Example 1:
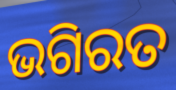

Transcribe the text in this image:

ଭଗିରତ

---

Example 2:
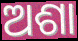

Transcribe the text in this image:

ଅଶା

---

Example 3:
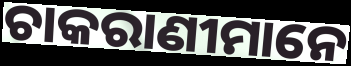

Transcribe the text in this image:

ଚାକରାଣୀମାନେ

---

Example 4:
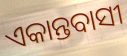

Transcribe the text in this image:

ଏକାନ୍ତବାସୀ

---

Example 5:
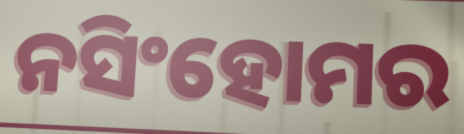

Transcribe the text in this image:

ନସିଂହୋମର